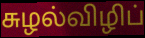
சுழல்விழிப்